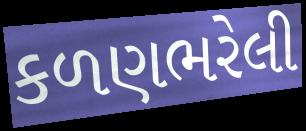
કળણભરેલી